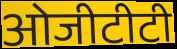
ओजीटीटी